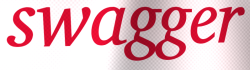
swagger